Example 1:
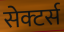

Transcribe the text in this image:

सेक्‍टर्स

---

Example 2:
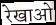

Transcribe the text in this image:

रेखाओ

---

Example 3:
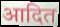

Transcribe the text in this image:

आदित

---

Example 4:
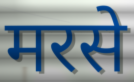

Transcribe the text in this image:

मरसे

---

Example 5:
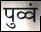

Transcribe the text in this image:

पुव्वं